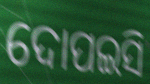
ଦୋପଇସି